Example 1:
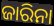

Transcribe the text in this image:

ଜାରିନା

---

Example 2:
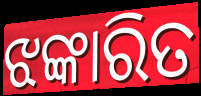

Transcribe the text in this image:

ଝଙ୍କାରିତ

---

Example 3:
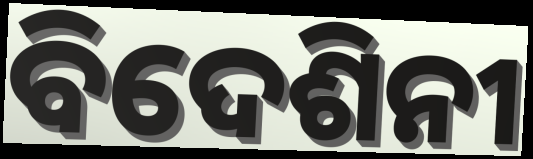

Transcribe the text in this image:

ବିଦେଶିନୀ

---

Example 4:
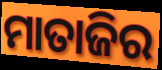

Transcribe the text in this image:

ମାତାଜିର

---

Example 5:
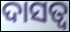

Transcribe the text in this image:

ଦାସତ୍ୱ